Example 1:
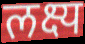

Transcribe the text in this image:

लक्ष्य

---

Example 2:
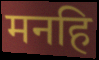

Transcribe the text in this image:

मनहि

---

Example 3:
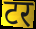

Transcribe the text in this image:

टर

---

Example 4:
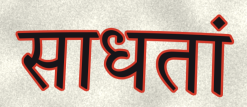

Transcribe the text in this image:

साधतां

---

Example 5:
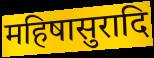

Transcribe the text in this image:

महिषासुरादि